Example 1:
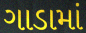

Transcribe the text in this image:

ગાડામાં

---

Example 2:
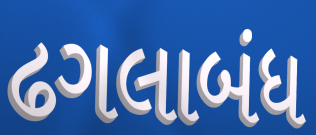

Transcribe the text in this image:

ઢગલાબંધ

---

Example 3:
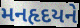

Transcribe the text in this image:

મનહૃદયને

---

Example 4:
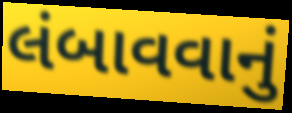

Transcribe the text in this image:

લંબાવવાનું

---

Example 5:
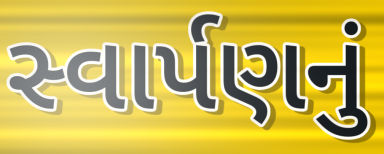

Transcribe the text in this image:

સ્વાર્પણનું